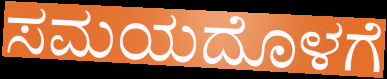
ಸಮಯದೊಳಗೆ